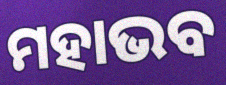
ମହାଭବ